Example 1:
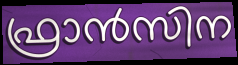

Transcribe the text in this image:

ഫ്രാൻസിന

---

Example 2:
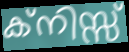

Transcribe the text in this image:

ക്നിസ്സ്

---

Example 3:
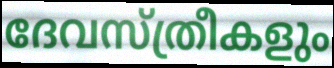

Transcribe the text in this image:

ദേവസ്ത്രീകളും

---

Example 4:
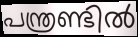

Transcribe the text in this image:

പന്ത്രണ്ടിൽ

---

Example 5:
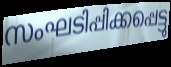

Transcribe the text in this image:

സംഘടിപ്പിക്കപ്പെട്ടു